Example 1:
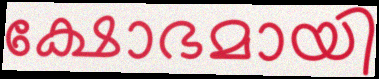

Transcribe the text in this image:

ക്ഷോഭമായി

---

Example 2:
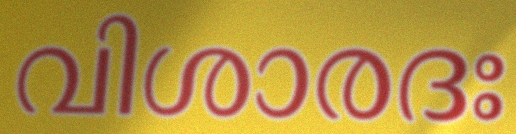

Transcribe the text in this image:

വിശാരദഃ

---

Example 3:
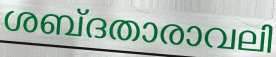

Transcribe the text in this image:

ശബ്‌ദതാരാവലി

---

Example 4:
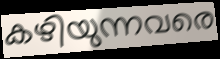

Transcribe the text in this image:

കഴിയുന്നവരെ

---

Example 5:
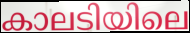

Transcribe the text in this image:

കാലടിയിലെ